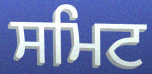
ਸਮਿਟ